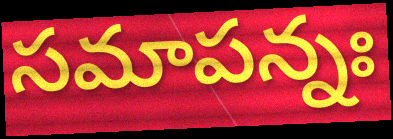
సమాపన్నః